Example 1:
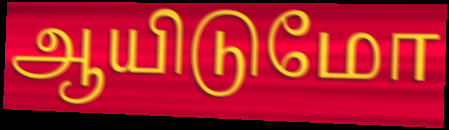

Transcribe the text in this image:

ஆயிடுமோ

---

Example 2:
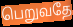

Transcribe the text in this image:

பெறுவதே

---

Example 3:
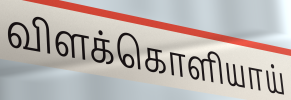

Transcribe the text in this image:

விளக்கொளியாய்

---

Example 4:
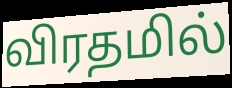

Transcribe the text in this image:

விரதமில்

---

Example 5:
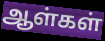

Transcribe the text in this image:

ஆள்கள்